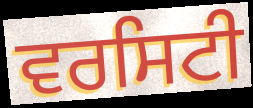
ਵਰਸਿਟੀ